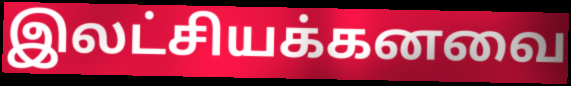
இலட்சியக்கனவை